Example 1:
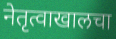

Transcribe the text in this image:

नेतृत्वाखालचा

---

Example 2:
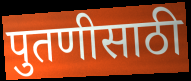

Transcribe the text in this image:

पुतणीसाठी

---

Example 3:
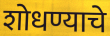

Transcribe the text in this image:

शोधण्याचे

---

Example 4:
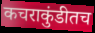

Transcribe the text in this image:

कचराकुंडीतच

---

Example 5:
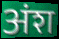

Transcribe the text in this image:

अंश